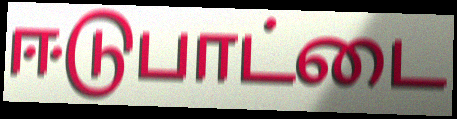
ஈடுபாட்டை